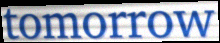
tomorrow